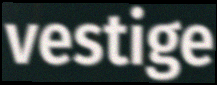
vestige